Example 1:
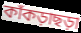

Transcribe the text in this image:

কাঁকড়াছড়া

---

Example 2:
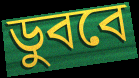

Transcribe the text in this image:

ডুববে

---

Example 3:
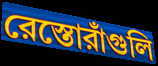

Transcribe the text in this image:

রেস্তোরাঁগুলি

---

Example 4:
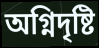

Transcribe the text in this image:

অগ্নিদৃষ্টি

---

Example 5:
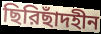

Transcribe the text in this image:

ছিরিছাঁদহীন